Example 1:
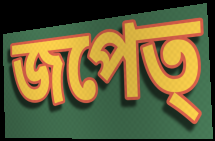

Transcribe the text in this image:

জপেত্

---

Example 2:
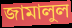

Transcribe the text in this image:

জামালুল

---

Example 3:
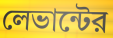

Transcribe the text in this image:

লেভান্টের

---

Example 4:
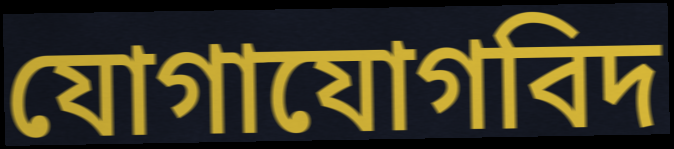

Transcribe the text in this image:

যোগাযোগবিদ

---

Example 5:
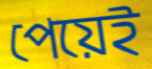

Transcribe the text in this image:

পেয়েই